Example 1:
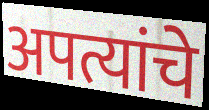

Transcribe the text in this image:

अपत्यांचे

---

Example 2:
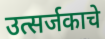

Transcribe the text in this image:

उत्सर्जकाचे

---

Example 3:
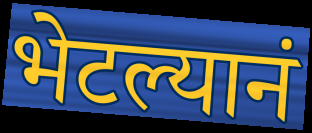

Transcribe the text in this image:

भेटल्यानं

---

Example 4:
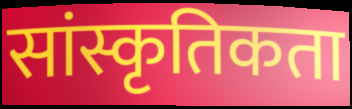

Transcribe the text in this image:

सांस्कृतिकता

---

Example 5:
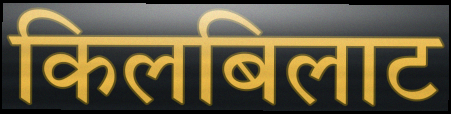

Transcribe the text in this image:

किलबिलाट